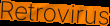
Retrovirus